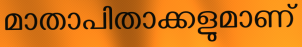
മാതാപിതാക്കളുമാണ്